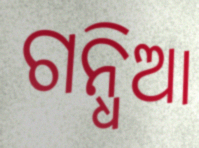
ଗନ୍ଧିଆ